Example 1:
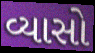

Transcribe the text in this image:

વ્યાસો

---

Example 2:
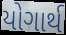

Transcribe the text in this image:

યોગાર્થ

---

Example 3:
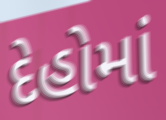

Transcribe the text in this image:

દેહોમાં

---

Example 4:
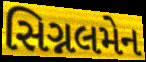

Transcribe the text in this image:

સિગ્નલમેન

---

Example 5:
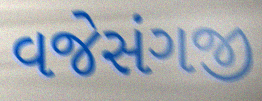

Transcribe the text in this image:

વજેસંગજી